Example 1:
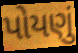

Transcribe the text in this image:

પોયણું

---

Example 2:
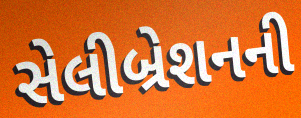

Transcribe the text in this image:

સેલીબ્રેશનની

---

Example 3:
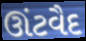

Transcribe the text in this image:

ઊંટવૈદ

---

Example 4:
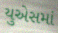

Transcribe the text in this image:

યુએસમાં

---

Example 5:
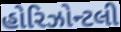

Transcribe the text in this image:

હોરિઝોન્ટલી